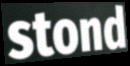
stond